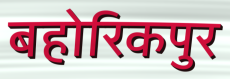
बहोरिकपुर